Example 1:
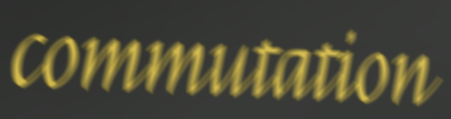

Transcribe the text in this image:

commutation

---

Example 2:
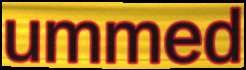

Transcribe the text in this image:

ummed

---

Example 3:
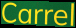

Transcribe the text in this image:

Carrel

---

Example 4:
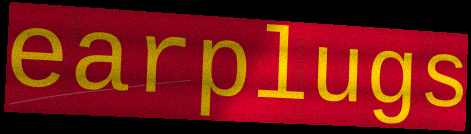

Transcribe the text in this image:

earplugs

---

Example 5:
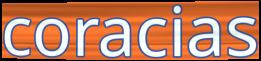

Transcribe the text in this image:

coracias